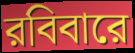
রবিবারে